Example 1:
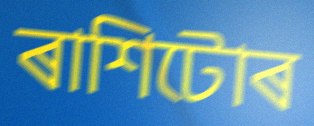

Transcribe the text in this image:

ৰাশিটোৰ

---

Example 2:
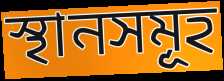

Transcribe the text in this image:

স্থানসমূহ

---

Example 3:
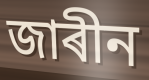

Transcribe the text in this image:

জাৰীন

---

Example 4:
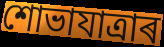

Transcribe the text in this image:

শোভাযাত্ৰাৰ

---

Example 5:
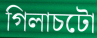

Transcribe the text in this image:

গিলাচটো